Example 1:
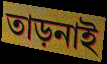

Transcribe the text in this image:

তাড়নাই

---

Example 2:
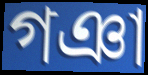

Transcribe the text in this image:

গঞা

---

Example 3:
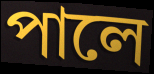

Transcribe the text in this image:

পালে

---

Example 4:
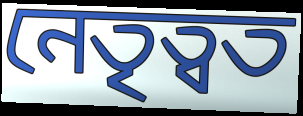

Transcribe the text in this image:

নেতৃত্বত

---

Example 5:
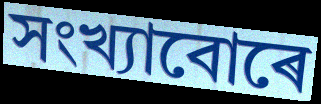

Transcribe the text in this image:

সংখ্যাবোৰে